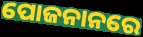
ପୋଜନାନରେ